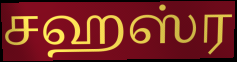
சஹஸ்ர